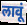
लावूं